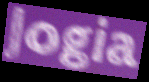
Jogia